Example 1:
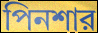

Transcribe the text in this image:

পিনশার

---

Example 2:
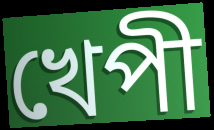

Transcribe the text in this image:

খেপী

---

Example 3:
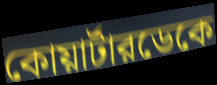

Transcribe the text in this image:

কোয়ার্টারডেকে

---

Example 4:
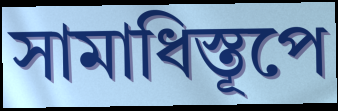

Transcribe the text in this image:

সামাধিস্তূপে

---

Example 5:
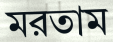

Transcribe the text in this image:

মরতাম